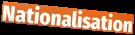
Nationalisation